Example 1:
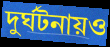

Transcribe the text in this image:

দুর্ঘটনায়ও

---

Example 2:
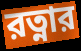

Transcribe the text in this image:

রত্নার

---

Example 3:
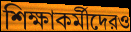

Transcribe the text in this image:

শিক্ষাকর্মীদেরও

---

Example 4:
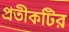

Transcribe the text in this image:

প্রতীকটির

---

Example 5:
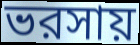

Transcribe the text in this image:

ভরসায়